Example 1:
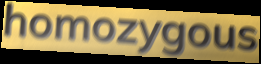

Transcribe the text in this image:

homozygous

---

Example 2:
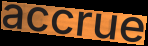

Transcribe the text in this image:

accrue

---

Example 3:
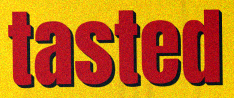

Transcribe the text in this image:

tasted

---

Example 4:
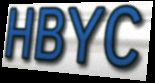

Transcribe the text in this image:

HBYC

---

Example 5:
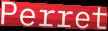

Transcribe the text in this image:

Perret